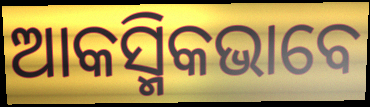
ଆକସ୍ମିକଭାବେ